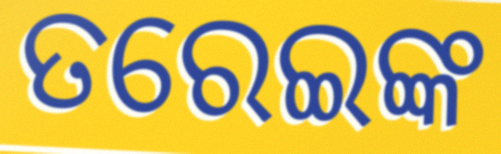
ତରେଇଙ୍କ